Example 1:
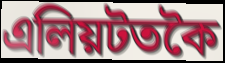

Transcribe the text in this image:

এলিয়টতকৈ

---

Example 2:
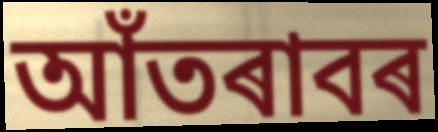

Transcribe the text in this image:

আঁতৰাবৰ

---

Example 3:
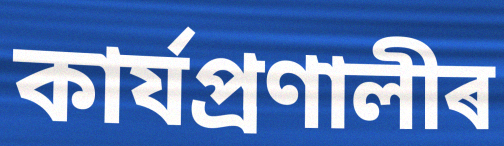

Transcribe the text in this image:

কাৰ্যপ্ৰণালীৰ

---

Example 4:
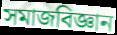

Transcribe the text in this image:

সমাজবিজ্ঞান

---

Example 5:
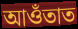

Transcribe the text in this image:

আওঁতাত